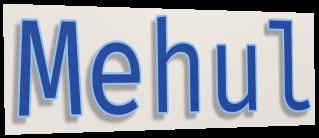
Mehul